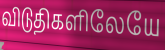
விடுதிகளிலேயே